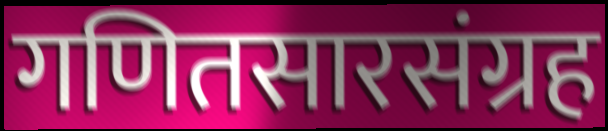
गणितसारसंग्रह